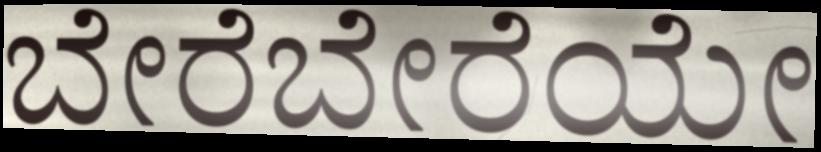
ಬೇರೆಬೇರೆಯೇ